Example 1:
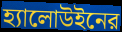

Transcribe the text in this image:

হ্যালোউইনের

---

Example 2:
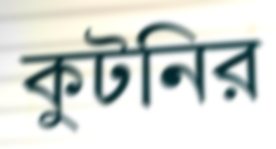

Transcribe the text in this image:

কুটনির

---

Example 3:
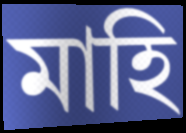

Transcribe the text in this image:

মাহি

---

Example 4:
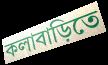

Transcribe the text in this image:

কলাবাড়িতে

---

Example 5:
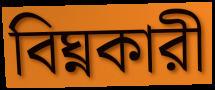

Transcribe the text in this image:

বিঘ্নকারী